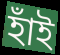
হাঁই